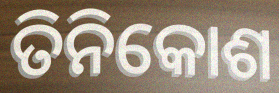
ତିନିକୋଶ